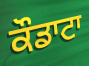
ਕੌਡਾਟਾ